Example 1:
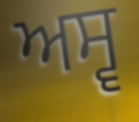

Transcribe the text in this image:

ਅਸ੍ਵ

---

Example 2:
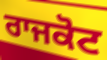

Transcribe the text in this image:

ਰਾਜਕੋਟ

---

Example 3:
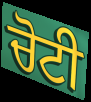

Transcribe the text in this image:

ਚੋਟੀ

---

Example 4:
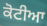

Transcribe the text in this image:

ਕੋਟੀਆ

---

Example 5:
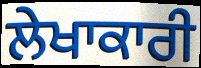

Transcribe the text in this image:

ਲੇਖਾਕਾਰੀ